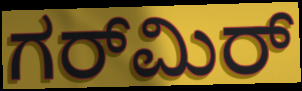
ಗರ್‌ಮಿರ್